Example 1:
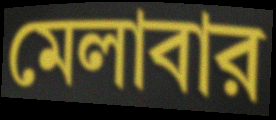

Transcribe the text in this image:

মেলাবার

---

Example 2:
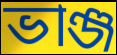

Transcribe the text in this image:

ভাঞ্জ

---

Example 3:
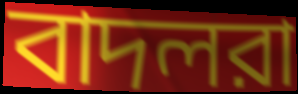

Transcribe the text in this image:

বাদলরা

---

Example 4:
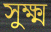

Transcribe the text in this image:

সুক্ষ্ম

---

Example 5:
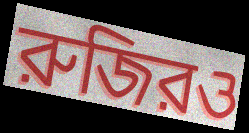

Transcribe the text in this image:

রুজিরও